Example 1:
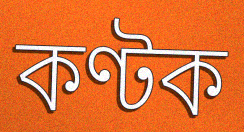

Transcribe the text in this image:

কণ্টক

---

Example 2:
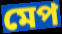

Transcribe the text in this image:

মেপ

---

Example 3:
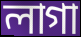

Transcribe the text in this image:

লাগা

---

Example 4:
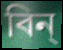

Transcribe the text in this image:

বিন্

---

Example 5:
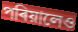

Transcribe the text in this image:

পৰিয়ালেও